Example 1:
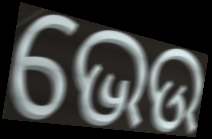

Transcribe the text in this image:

ଭେଉ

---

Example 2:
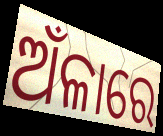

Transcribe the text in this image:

ଅଁଳାରେ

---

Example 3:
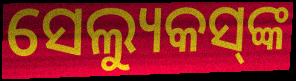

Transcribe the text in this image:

ସେଲ୍ୟୁକସ୍‌ଙ୍କ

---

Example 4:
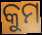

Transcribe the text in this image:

କୁମ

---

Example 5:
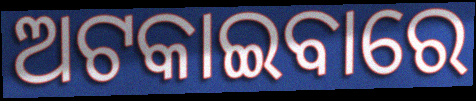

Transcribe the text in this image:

ଅଟକାଇବାରେ